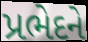
પ્રભેદને